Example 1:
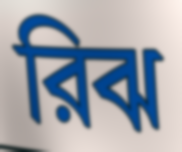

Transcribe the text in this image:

রিঝ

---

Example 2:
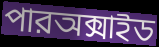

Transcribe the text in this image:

পারঅক্সাইড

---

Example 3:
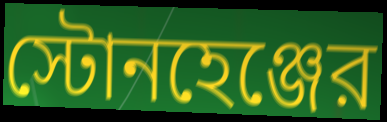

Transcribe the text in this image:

স্টোনহেঞ্জের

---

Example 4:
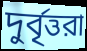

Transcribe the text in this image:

দুর্বৃত্তরা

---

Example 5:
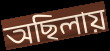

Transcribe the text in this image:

অছিলায়